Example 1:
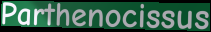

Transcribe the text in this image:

Parthenocissus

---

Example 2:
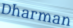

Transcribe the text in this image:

Dharman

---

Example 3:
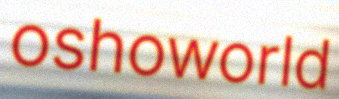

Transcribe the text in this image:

oshoworld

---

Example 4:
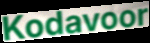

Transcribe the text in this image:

Kodavoor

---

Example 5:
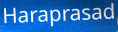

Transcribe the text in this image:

Haraprasad